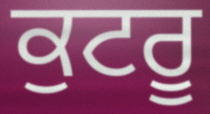
ਕੁਟਰੂ